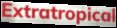
Extratropical